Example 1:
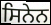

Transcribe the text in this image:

ਸਿਨੇਨ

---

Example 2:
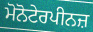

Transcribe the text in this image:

ਮੋਨੋਟੇਰਪੀਨਜ਼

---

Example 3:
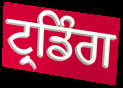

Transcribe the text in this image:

ਟ੍ਰਡਿੰਗ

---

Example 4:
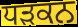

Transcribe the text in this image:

ਧੜਕਨ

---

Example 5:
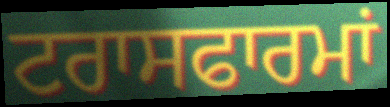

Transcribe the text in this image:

ਟਰਾਸਫਾਰਮਾਂ